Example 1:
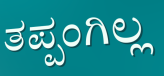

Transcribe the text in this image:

ತಪ್ಪಂಗಿಲ್ಲ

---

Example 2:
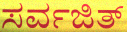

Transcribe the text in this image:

ಸರ್ವಜಿತ್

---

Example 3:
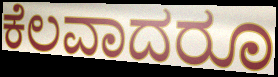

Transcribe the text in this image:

ಕೆಲವಾದರೂ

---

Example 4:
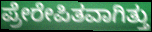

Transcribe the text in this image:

ಪ್ರೇರೇಪಿತವಾಗಿತ್ತು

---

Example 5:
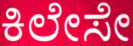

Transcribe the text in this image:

ಕಿಲೇಸೇ